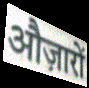
औज़ारों